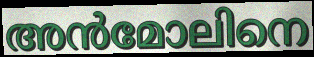
അൻമോലിനെ